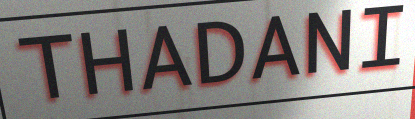
THADANI